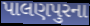
પાલણપુરના